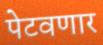
पेटवणार